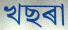
খছৰা